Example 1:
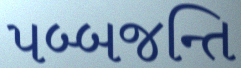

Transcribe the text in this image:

પબ્બજન્તિ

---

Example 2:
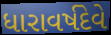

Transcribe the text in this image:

ધારાવર્ષદેવે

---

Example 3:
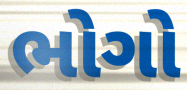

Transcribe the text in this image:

ભોગો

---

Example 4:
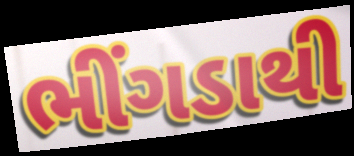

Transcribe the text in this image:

ભીંગડાથી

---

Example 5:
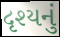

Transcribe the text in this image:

દૃશ્યનું